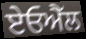
ਏਓਐੱਲ